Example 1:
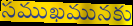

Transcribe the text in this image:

సముఖమునకు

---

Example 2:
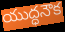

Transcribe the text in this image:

యుద్ధనౌక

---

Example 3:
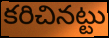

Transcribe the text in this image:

కరిచినట్టు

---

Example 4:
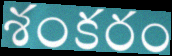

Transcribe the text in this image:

శంకరం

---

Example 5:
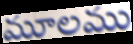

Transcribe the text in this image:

మూలము